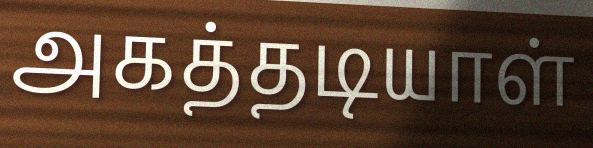
அகத்தடியாள்